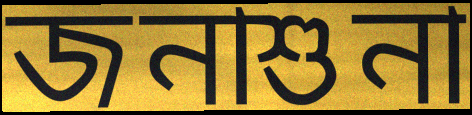
জনাশুনা